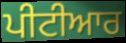
ਪੀਟੀਆਰ